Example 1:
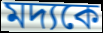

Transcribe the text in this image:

মদ্যকে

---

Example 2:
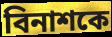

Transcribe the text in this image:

বিনাশকে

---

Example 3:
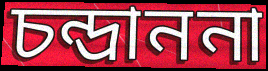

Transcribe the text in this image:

চন্দ্রাননা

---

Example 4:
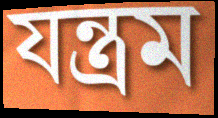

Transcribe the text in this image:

যন্ত্রম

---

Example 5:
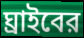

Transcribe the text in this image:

ঘ্রাইবের